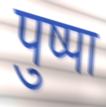
पुष्पा